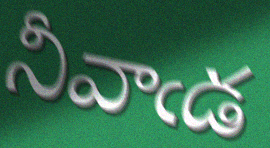
నీవాఁడ